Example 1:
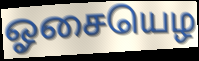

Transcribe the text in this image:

ஓசையெழ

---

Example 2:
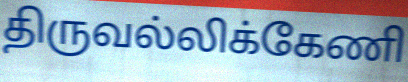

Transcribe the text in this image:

திருவல்லிக்கேணி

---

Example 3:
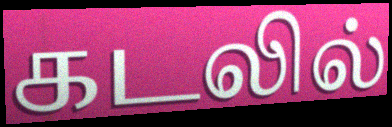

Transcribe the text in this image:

கடலில்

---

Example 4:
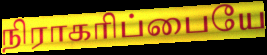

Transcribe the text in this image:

நிராகரிப்பையே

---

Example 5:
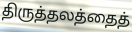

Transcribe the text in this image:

திருத்தலத்தைத்